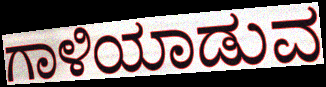
ಗಾಳಿಯಾಡುವ